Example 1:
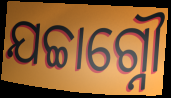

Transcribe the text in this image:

ଯଚ୍ଚାଗ୍ନୌ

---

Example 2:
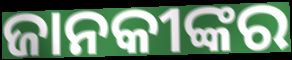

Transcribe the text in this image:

ଜାନକୀଙ୍କର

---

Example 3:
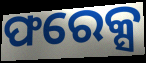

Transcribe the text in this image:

ଫରେକ୍ସ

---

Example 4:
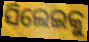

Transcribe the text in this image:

ସିଲେଇକୁ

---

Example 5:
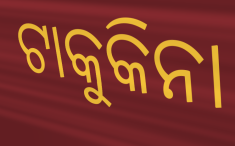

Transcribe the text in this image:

ଟାକୁକିନା